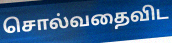
சொல்வதைவிட